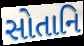
સોતાનિ